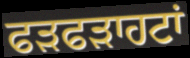
ਫੜਫੜਾਹਟਾਂ